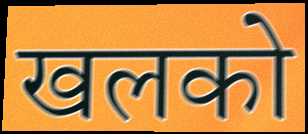
खलको